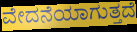
ವೇದನೆಯಾಗುತ್ತದೆ